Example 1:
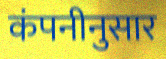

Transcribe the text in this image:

कंपनीनुसार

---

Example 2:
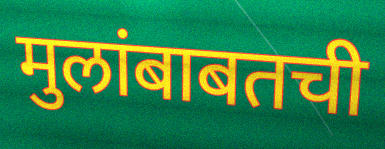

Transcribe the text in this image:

मुलांबाबतची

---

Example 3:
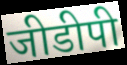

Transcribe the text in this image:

जीडीपी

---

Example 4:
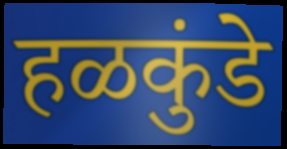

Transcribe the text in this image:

हळकुंडे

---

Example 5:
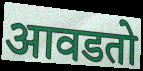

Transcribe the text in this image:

आवडतो